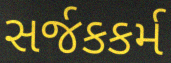
સર્જકકર્મ